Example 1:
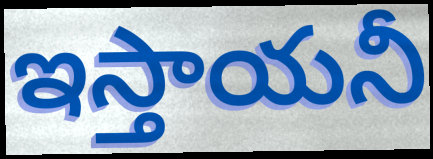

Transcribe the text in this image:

ఇస్తాయనీ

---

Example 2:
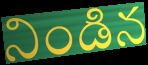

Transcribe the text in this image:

నిండిన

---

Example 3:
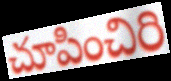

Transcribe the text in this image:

చూపించిరి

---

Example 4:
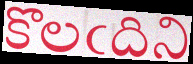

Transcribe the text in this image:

కొలఁదిని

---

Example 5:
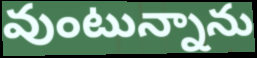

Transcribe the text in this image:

వుంటున్నాను